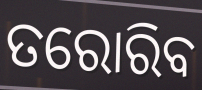
ତରୋରିବ